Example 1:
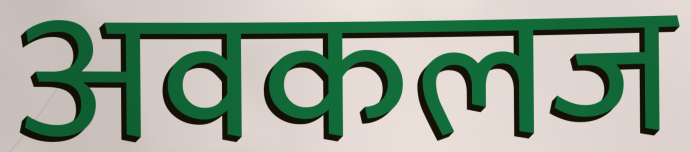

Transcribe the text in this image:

अवकलज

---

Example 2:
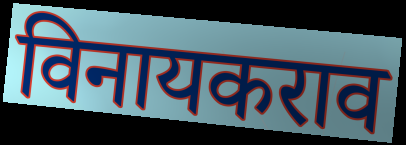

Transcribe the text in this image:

विनायकराव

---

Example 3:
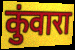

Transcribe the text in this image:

कुंवारा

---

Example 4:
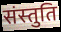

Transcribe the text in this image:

संस्तुति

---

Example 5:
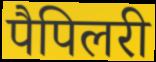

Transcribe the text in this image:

पैपिलरी